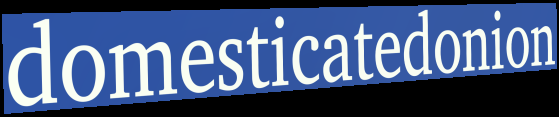
domesticatedonion